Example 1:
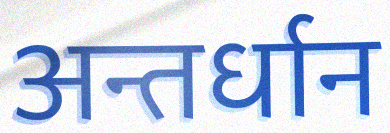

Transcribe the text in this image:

अन्तर्धान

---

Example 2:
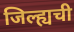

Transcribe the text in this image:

जिल्ह्यची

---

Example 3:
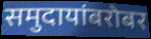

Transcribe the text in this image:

समुदायांबरोबर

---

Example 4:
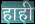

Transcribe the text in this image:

हाही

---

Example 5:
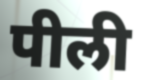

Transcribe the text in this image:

पीली